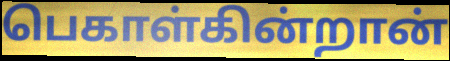
பெகாள்கின்றான்